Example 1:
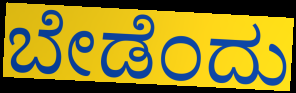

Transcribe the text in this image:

ಬೇಡೆಂದು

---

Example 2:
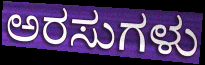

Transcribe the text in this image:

ಅರಸುಗಳು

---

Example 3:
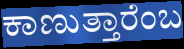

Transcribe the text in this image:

ಕಾಣುತ್ತಾರೆಂಬ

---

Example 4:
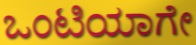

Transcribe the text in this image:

ಒಂಟಿಯಾಗೇ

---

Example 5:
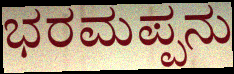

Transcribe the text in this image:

ಭರಮಪ್ಪನು